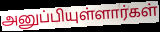
அனுப்பியுள்ளார்கள்